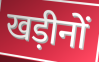
खड़ीनों